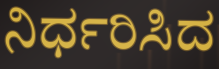
ನಿರ್ಧರಿಸಿದ